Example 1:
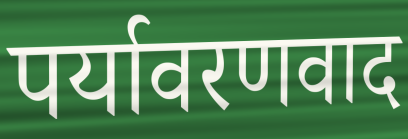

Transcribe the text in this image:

पर्यावरणवाद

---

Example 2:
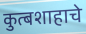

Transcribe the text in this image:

कुत्बशाहाचे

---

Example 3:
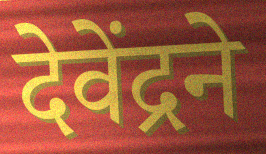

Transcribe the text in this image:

देवेंद्रने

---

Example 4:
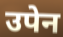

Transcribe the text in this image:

उपेन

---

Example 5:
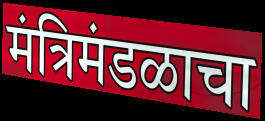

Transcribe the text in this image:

मंत्रिमंडळाचा